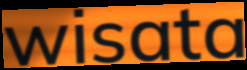
wisata